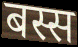
बस्स